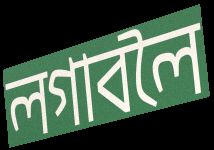
লগাবলৈ